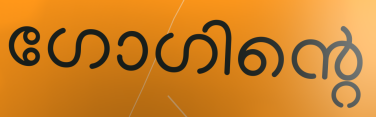
ഗോഗിന്റെ